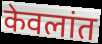
केवलांत